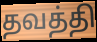
தவத்தி